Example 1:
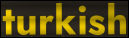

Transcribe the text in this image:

turkish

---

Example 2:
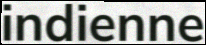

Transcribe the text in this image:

indienne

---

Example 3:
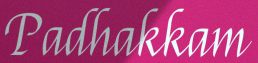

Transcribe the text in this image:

Padhakkam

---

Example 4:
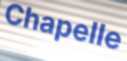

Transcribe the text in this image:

Chapelle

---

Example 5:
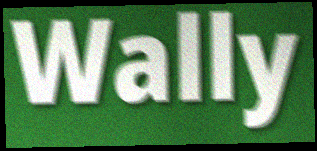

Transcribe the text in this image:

Wally